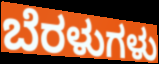
ಬೆರಳುಗಳು